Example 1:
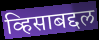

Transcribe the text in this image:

व्हिसाबद्दल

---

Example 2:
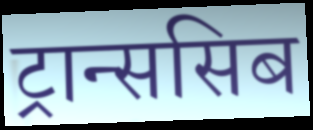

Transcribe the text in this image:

ट्रान्ससिब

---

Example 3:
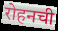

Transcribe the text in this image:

रोहनची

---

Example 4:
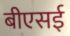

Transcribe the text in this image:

बीएसई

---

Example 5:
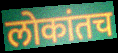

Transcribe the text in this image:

लोकांतच